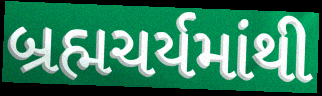
બ્રહ્મચર્યમાંથી